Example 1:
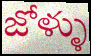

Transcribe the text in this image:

జోళ్ళు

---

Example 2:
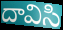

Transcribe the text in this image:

దావిసి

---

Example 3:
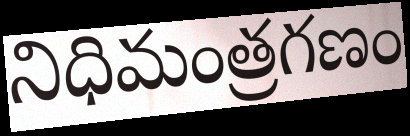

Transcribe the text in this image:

నిధిమంత్రగణం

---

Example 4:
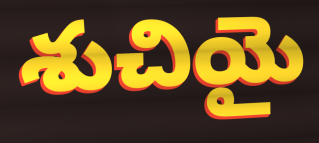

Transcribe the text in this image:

శుచియై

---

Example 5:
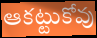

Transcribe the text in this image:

ఆకట్టుకోవు